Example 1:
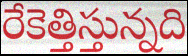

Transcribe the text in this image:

రేకెత్తిస్తున్నది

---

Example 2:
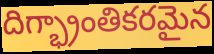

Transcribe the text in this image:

దిగ్భ్రాంతికరమైన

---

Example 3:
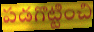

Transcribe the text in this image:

పడగొట్టించి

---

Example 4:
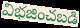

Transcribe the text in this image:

విభజించబడి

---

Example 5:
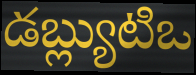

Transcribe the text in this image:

డబ్ల్యుటిఒ